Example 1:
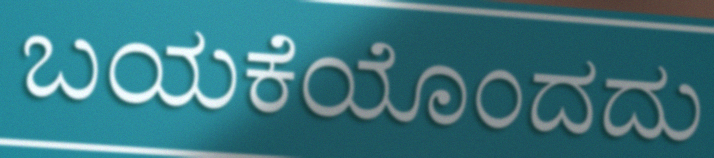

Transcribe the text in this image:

ಬಯಕೆಯೊಂದದು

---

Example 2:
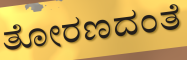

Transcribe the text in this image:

ತೋರಣದಂತೆ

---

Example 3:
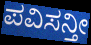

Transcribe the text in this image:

ಪವಿಸನ್ತೀ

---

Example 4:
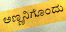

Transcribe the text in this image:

ಅಣ್ಣನಿಗೊಂದು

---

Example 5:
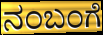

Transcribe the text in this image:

ನಂಬಂಗೆ